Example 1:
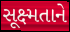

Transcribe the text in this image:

સૂક્ષ્મતાને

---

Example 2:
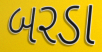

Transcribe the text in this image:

બરડા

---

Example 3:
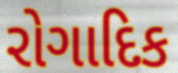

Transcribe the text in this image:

રોગાદિક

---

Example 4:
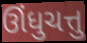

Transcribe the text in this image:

ઊંધુચત્તુ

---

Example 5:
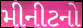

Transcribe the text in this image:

મીનીટનો